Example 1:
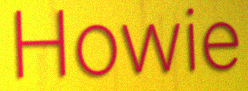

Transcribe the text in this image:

Howie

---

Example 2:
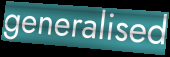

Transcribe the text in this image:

generalised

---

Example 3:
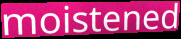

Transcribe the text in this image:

moistened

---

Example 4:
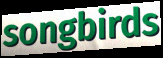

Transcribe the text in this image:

songbirds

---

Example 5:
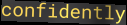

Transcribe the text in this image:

confidently